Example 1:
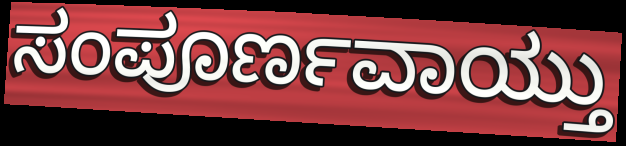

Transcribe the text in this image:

ಸಂಪೂರ್ಣವಾಯ್ತು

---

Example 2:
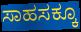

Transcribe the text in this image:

ಸಾಹಸಕ್ಕೂ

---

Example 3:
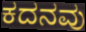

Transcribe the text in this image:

ಕದನವು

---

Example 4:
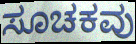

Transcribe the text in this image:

ಸೂಚಕವು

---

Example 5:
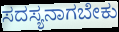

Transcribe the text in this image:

ಸದಸ್ಯನಾಗಬೇಕು